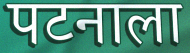
पटनाला